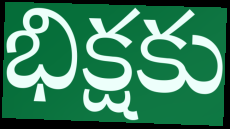
భిక్షకు